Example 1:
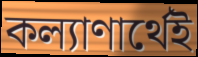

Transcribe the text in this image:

কল্যাণার্থেই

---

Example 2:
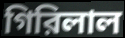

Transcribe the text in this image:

গিরিলাল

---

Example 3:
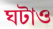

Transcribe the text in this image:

ঘটাও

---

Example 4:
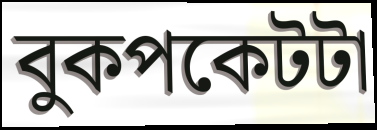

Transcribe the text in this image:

বুকপকেটটা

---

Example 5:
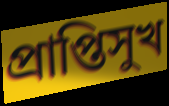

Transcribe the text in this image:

প্রাপ্তিসুখ